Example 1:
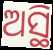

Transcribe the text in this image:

ଅସ୍ଥି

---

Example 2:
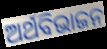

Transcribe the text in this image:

ଅର୍ଥବିଭାଜନ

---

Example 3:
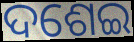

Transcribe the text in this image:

ଦଶେଇ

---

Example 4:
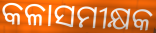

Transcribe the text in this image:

କଳାସମୀକ୍ଷକ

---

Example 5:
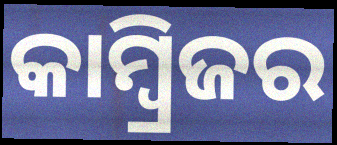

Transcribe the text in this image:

କାମ୍ବ୍ରିଜର